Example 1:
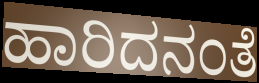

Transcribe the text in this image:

ಹಾರಿದನಂತೆ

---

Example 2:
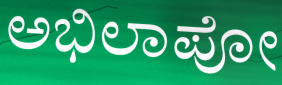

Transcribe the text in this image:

ಅಭಿಲಾಪೋ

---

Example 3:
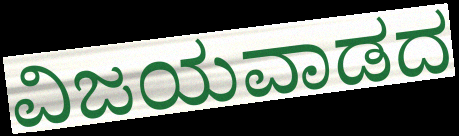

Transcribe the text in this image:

ವಿಜಯವಾಡದ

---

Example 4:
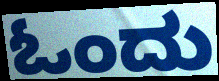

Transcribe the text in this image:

ಓಂದು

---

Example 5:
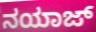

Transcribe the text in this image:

ನಯಾಜ್